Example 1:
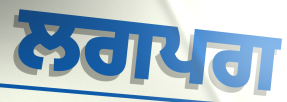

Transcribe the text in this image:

ਲਗਪਗ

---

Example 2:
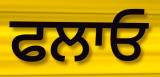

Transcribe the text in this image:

ਫਲਾਓ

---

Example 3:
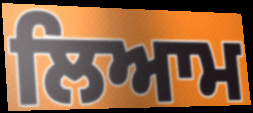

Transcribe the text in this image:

ਲਿਆਮ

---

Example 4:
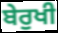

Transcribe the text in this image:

ਬੇਰੁਖੀ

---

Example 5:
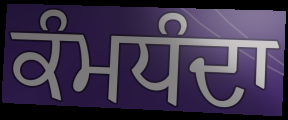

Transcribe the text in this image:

ਕੰਮਧੰਦਾ